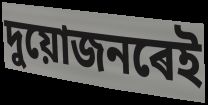
দুয়োজনৰেই